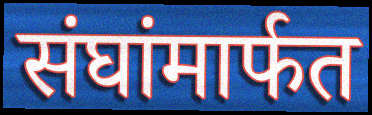
संघांमार्फत